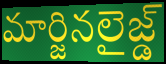
మార్జినలైజ్డ్